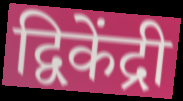
द्विकेंद्री